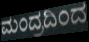
ಮಂದ್ರದಿಂದ